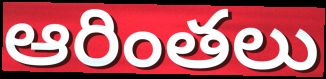
ఆరింతలు